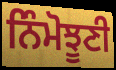
ਨਿੰਮੋਝੂਣੀ